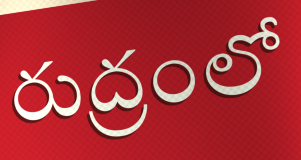
రుద్రంలో